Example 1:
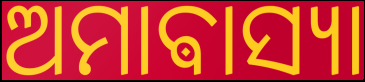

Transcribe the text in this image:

ଅମାଵାସ୍ୟା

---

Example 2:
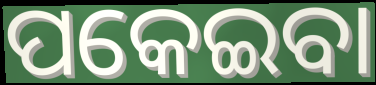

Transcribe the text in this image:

ପକେଇବା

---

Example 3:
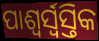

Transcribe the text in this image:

ପାଶ୍ୱର୍ସ୍ୱସ୍ତିକ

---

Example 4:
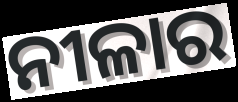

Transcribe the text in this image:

ନୀଳାର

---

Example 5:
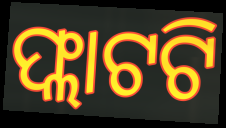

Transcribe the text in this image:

ଫ୍ଲାଟଟି